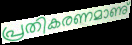
പ്രതികരണമാണു്